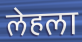
लेहला